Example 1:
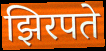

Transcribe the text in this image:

झिरपते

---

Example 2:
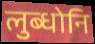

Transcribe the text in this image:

लुब्धोनि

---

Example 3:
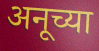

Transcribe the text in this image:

अनूच्या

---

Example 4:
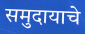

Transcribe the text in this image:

समुदायाचे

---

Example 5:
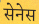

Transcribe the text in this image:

सेनेस